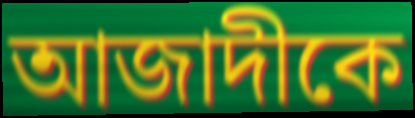
আজাদীকে